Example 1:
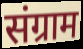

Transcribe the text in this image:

संग्राम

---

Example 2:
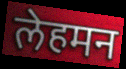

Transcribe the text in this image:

लेहमन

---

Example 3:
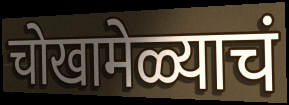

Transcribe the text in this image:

चोखामेळ्याचं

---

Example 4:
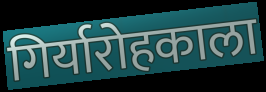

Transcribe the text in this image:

गिर्यारोहकाला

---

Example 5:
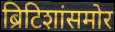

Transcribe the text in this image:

ब्रिटिशांसमोर